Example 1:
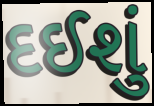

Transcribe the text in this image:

દઈશું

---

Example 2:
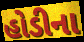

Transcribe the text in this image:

હોડીના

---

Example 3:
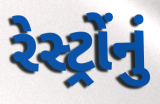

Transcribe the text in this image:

રેસ્ટ્રોંનું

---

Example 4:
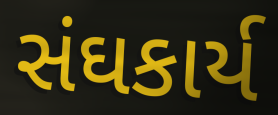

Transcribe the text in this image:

સંઘકાર્ય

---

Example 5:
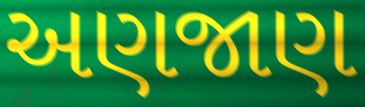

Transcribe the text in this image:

અણજાણ